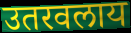
उतरवलाय